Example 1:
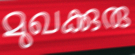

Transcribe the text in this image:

മുഖക്കുരു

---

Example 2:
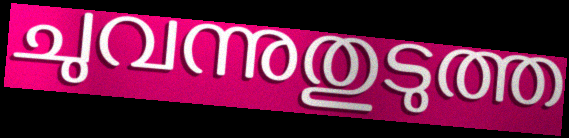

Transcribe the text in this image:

ചുവന്നുതുടുത്ത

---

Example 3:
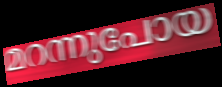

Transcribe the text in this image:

മറന്നുപോയ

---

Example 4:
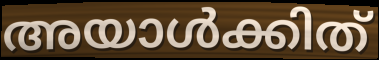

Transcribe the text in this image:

അയാൾക്കിത്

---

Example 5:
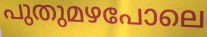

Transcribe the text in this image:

പുതുമഴപോലെ